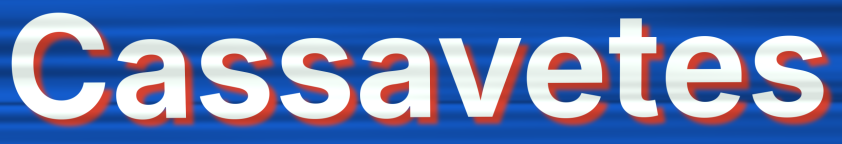
Cassavetes